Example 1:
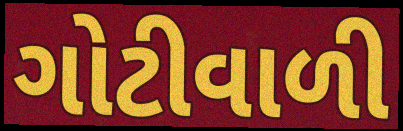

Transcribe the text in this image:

ગોટીવાળી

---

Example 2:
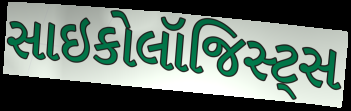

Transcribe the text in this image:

સાઇકોલૉજિસ્ટ્સ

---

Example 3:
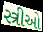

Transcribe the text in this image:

સ્ત્રીઓ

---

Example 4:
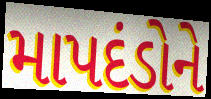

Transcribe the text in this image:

માપદંડોને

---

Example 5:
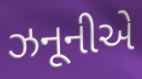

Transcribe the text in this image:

ઝનૂનીએ